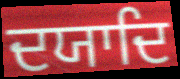
ਦਯਾਦਿ